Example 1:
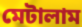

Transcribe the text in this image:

মেটালাম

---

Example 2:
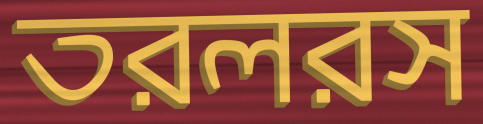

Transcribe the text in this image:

তরলরস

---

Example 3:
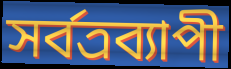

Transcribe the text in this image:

সর্বত্রব্যাপী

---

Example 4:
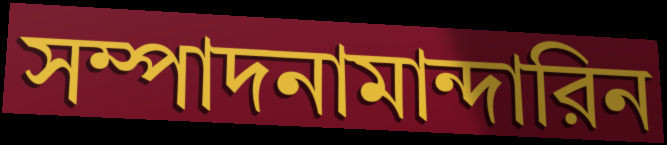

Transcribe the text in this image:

সম্পাদনামান্দারিন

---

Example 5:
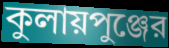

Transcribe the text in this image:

কুলায়পুঞ্জের